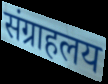
संग्राहलय